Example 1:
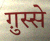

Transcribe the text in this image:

ग़ुस्से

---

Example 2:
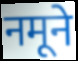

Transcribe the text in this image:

नमूने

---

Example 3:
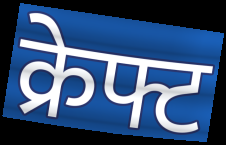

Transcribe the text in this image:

क्रेफ्ट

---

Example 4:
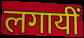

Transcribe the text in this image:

लगायीं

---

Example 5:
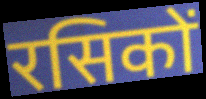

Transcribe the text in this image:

रसिकों